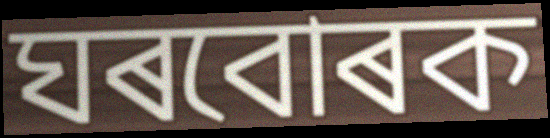
ঘৰবোৰক